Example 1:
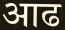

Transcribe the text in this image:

आढ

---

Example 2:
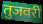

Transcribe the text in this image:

तुजवरी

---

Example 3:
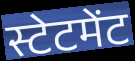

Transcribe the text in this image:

स्टेटमेंट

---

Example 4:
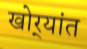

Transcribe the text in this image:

खोर्यांत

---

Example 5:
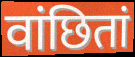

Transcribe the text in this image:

वांछितां